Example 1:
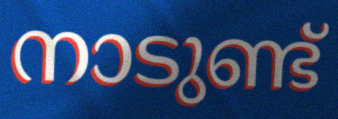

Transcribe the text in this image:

നാടുണ്ട്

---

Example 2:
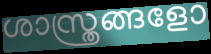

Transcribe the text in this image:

ശാസ്ത്രങ്ങളോ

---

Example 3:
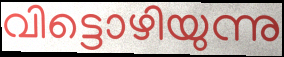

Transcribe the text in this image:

വിട്ടൊഴിയുന്നു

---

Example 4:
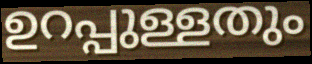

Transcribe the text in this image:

ഉറപ്പുള്ളതും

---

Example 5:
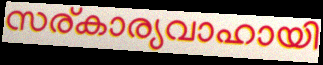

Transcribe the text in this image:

സര്കാര്യവാഹായി